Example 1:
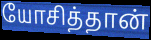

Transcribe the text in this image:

யோசித்தான்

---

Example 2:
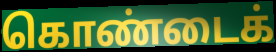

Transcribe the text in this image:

கொண்டைக்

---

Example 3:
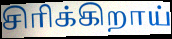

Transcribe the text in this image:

சிரிக்கிறாய்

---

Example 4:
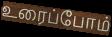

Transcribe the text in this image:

உரைப்போம்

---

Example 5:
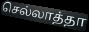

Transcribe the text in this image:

செல்லாத்தா